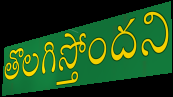
తొలగిస్తోందని